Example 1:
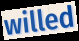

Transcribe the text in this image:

willed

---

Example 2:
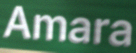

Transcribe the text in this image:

Amara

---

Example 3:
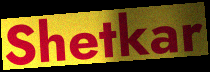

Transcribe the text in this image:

Shetkar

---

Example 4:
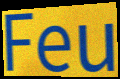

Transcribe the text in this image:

Feu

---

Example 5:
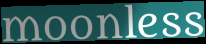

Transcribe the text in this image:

moonless